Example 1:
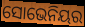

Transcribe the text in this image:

ସୋଭେନିୟର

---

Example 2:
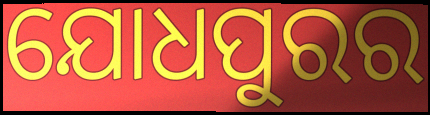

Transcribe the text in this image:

ଯୋଧପୁରର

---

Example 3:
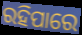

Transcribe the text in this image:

ରହିପାରେ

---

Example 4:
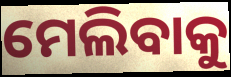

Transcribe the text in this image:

ମେଲିବାକୁ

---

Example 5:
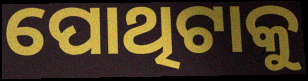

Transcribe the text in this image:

ପୋଥିଟାକୁ